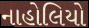
નાહોલિયો